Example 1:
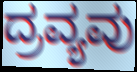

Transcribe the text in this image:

ದ್ರವ್ಯವು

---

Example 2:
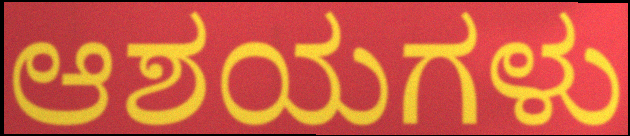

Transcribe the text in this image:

ಆಶಯಗಳು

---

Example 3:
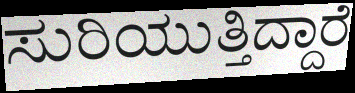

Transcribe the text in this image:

ಸುರಿಯುತ್ತಿದ್ದಾರೆ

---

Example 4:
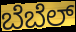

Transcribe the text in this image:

ಬೆಬೆಲ್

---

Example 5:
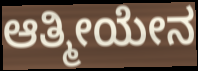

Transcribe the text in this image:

ಆತ್ಮೀಯೇನ